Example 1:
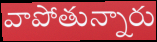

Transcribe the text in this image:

వాపోతున్నారు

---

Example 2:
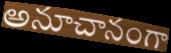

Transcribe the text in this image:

అనూచానంగా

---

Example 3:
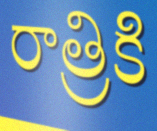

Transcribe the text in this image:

రాత్రికి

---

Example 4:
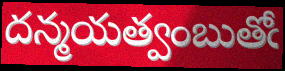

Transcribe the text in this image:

దన్మయత్వంబుతోఁ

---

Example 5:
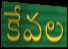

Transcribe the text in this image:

కేవల